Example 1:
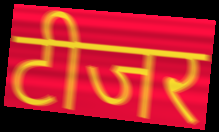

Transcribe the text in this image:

टीजर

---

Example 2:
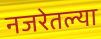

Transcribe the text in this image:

नजरेतल्या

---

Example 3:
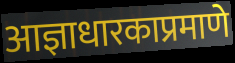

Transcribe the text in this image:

आज्ञाधारकाप्रमाणे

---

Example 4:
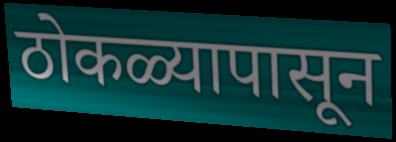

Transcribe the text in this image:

ठोकळ्यापासून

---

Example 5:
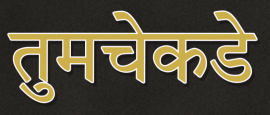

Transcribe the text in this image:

तुमचेकडे